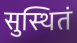
सुस्थितं